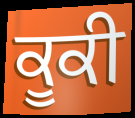
ਕੂਕੀ